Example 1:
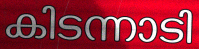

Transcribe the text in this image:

കിടന്നാടി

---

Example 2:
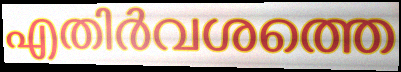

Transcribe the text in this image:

എതിർവശത്തെ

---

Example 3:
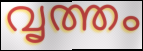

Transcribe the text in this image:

വൃത്തം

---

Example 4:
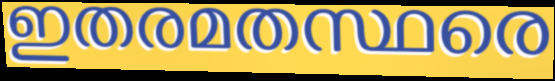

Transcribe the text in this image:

ഇതരമതസ്ഥരെ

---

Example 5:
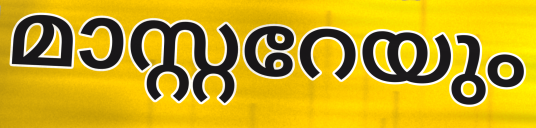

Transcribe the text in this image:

മാസ്റ്ററേയും